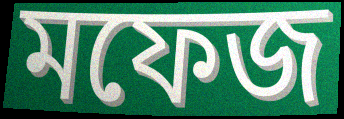
মফেজ